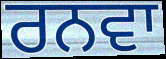
ਰਨਵਾ